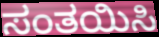
ಸಂತಯಿಸಿ